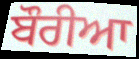
ਬੌਰੀਆ